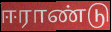
ஈராண்டு